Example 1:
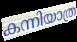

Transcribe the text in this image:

കന്നിയാത്ര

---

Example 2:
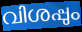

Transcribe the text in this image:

വിശപ്പും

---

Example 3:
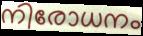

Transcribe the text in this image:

നിരോധനം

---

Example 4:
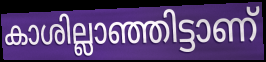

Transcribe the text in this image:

കാശില്ലാഞ്ഞിട്ടാണ്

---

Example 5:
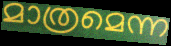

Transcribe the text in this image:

മാത്രമെന്ന